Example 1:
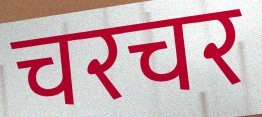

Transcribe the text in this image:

चरचर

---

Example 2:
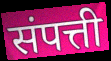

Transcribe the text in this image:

संपत्ती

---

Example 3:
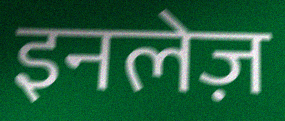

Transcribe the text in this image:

इनलेज़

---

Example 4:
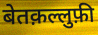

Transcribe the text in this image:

बेतक़ल्लुफ़ी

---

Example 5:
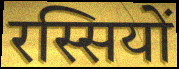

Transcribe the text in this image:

रस्सियों